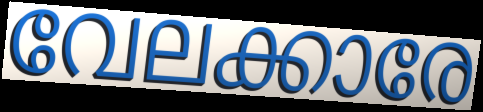
വേലക്കാരേ